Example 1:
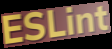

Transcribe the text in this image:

ESLint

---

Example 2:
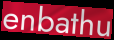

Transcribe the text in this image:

enbathu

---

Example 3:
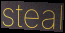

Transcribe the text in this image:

steal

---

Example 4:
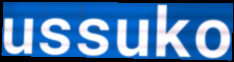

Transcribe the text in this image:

ussuko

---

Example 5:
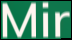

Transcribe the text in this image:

Mir